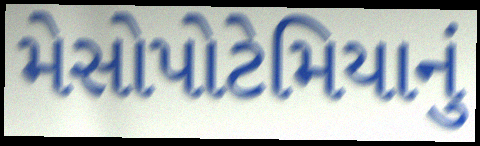
મેસોપોટેમિયાનું